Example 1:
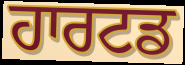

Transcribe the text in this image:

ਹਾਰਟਡ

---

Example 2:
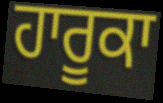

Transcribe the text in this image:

ਹਾਰੂਕਾ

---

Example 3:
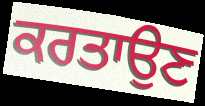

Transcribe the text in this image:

ਕਰਤਾਉਣ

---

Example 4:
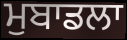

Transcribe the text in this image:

ਮੁਬਾਡਲਾ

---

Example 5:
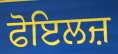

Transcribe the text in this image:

ਫੋਇਲਜ਼